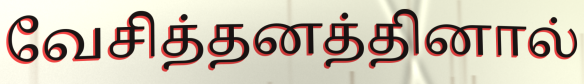
வேசித்தனத்தினால்